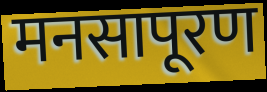
मनसापूरण